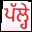
ਪੱਲ੍ਹੇ